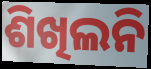
ଶିଖିଲନି